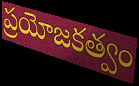
ప్రయోజకత్వం